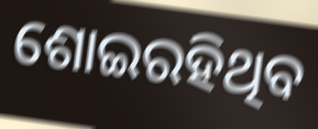
ଶୋଇରହିଥିବ